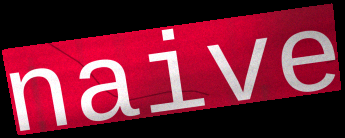
naive